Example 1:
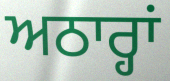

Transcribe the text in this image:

ਅਠਾਰ੍ਹਾਂ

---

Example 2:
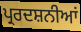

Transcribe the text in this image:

ਪ੍ਰਰਦਸ਼ਨੀਆਂ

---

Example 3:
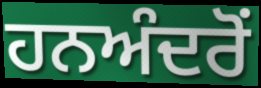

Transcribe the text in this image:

ਹਨਅੰਦਰੋਂ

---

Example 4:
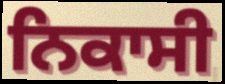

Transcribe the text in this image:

ਨਿਕਾਸੀ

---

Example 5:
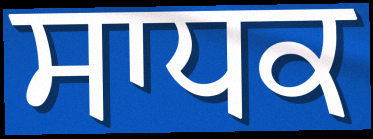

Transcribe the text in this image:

ਸਾਧਕ